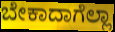
ಬೇಕಾದಾಗೆಲ್ಲಾ